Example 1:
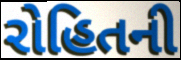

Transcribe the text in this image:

રોહિતની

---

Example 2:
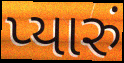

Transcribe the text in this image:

પ્યારું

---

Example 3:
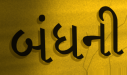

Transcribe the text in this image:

બંધની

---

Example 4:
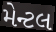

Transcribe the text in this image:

મેન્ટલ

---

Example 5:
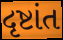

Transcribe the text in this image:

દૃષ્ટાંત